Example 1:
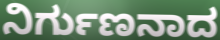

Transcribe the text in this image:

ನಿರ್ಗುಣನಾದ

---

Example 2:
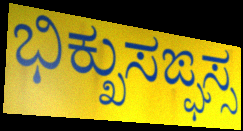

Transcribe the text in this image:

ಭಿಕ್ಖುಸಙ್ಘಸ್ಸ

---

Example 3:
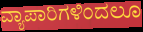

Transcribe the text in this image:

ವ್ಯಾಪಾರಿಗಳಿಂದಲೂ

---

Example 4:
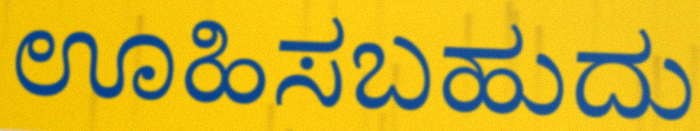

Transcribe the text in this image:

ಊಹಿಸಬಹುದು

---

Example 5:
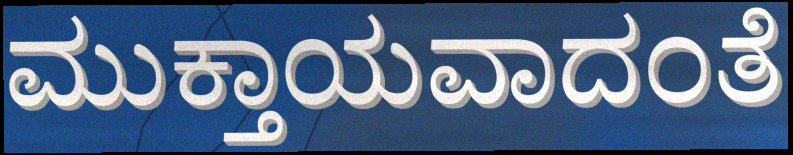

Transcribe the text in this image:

ಮುಕ್ತಾಯವಾದಂತೆ